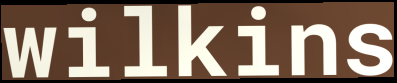
wilkins